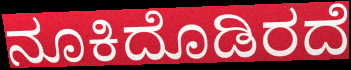
ನೂಕಿದೊಡಿರದೆ